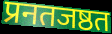
प्रनतजष्ठत